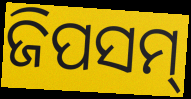
ଜିପସମ୍